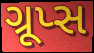
ગ્રૂપ્સ